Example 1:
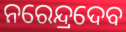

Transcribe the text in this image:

ନରେନ୍ଦ୍ରଦେବ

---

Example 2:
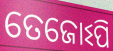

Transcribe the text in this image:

ତେଜୋଽପି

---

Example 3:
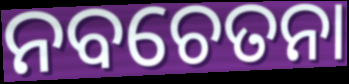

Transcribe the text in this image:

ନବଚେତନା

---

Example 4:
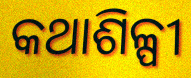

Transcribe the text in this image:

କଥାଶିଳ୍ପୀ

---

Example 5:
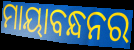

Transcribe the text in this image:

ମାୟାବନ୍ଧନର